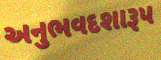
અનુભવદશારૂપ